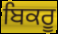
ਬਿਕਰੂ